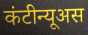
कंटीन्यूअस